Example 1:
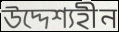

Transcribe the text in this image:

উদ্দেশ্যহীন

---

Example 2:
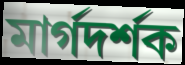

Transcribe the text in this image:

মার্গদর্শক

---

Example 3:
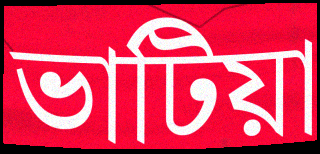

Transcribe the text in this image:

ভাটিয়া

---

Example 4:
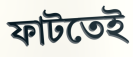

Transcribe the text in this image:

ফাটতেই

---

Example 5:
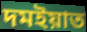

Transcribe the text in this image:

দমইয়াত